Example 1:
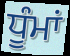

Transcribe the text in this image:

ਧੂੰਮਾਂ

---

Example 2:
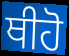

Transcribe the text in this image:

ਥੀਹੋ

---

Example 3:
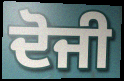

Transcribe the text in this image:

ਦੋਜੀ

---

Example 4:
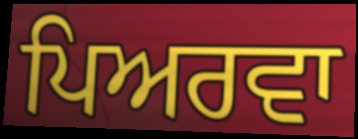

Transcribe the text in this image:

ਪਿਅਰਵਾ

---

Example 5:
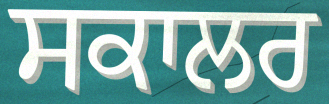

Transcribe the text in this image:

ਸਕਾਲਰ